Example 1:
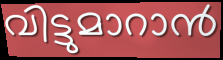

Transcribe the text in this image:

വിട്ടുമാറാൻ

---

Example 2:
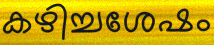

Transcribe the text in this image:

കഴിച്ചശേഷം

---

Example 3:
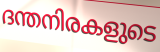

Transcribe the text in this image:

ദന്തനിരകളുടെ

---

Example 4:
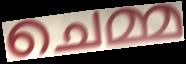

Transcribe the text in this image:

ചെമ്മ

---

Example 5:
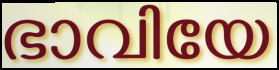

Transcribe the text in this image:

ഭാവിയേ